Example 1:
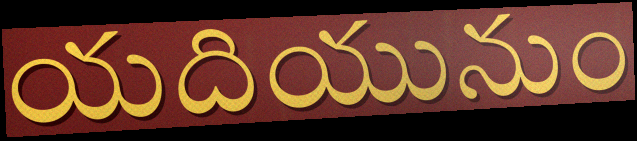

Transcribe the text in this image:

యదియునుం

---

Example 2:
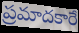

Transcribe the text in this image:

ప్రమాదకారే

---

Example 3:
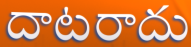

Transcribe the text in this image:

దాటరాదు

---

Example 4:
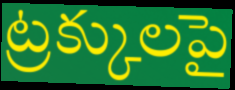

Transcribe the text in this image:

ట్రక్కులపై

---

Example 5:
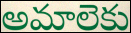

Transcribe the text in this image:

అమాలెకు